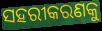
ସହରୀକରଣକୁ